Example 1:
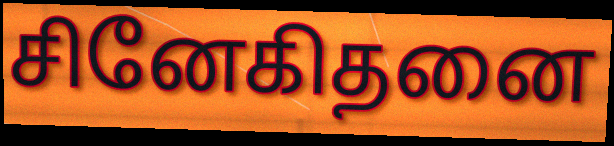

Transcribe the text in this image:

சினேகிதனை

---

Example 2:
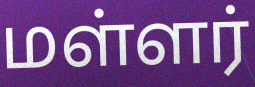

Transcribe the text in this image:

மள்ளர்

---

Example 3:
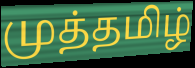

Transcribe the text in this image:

முத்தமிழ்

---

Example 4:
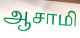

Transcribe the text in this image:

ஆசாமி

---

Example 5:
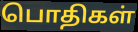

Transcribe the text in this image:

பொதிகள்